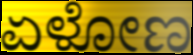
ಏಳೋಣ